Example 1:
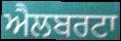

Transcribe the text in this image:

ਐਲਬਰਟਾ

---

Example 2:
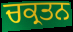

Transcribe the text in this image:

ਚਕ੍ਰਤਨ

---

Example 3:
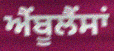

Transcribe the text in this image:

ਐੰਬੂਲੈਂਸਾਂ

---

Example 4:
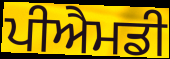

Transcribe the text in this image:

ਪੀਐਮਡੀ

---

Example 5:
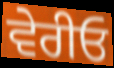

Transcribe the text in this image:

ਵੇਰੀਓ